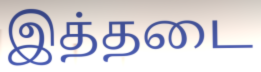
இத்தடை